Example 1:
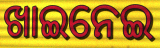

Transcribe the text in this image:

ଖାଇନେଇ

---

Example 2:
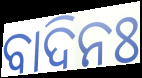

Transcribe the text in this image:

ବାଦିନଃ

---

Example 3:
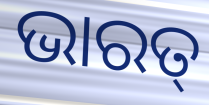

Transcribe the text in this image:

ଭାରତ୍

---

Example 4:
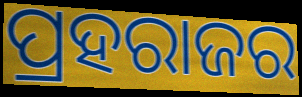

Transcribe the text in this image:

ପ୍ରହରାଜର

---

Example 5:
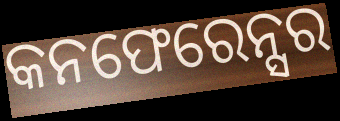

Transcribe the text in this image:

କନଫେରେନ୍ସର